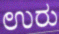
ಉರು